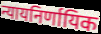
न्यायनिर्णायिक